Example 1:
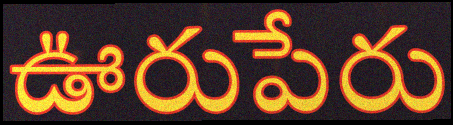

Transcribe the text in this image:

ఊరుపేరు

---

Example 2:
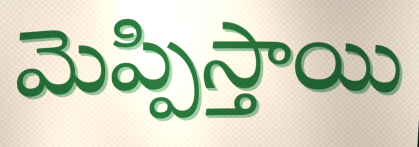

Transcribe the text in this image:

మెప్పిస్తాయి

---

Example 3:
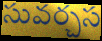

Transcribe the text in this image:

సువర్చస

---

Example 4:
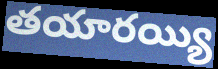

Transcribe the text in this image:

తయారయ్యి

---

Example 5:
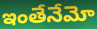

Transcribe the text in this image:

ఇంతేనేమో